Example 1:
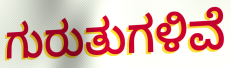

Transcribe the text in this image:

ಗುರುತುಗಳಿವೆ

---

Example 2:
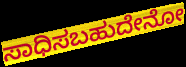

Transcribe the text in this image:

ಸಾಧಿಸಬಹುದೇನೋ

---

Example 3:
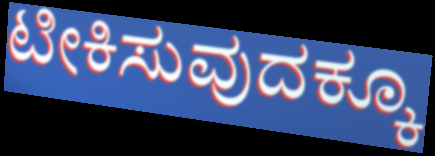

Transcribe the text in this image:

ಟೀಕಿಸುವುದಕ್ಕೂ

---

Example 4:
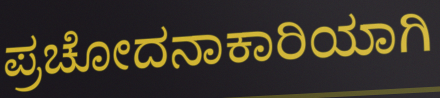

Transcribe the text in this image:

ಪ್ರಚೋದನಾಕಾರಿಯಾಗಿ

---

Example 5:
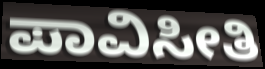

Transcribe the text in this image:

ಪಾವಿಸೀತಿ